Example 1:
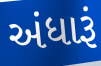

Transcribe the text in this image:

અંધારૂં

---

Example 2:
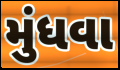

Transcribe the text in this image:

મુંધવા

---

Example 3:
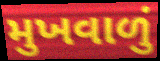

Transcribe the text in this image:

મુખવાળું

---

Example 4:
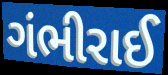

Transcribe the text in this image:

ગંભીરાઈ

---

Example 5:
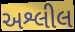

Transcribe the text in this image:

અશ્લીલ